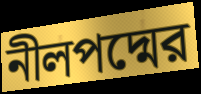
নীলপদ্মের